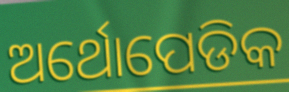
ଅର୍ଥୋପେଡିକ